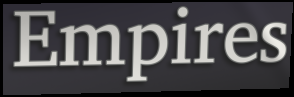
Empires